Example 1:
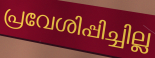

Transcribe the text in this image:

പ്രവേശിപ്പിച്ചില്ല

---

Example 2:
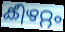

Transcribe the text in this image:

കീഴറ്റം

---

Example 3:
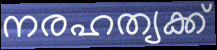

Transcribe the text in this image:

നരഹത്യക്ക്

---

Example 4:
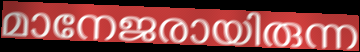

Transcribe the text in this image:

മാനേജരായിരുന്ന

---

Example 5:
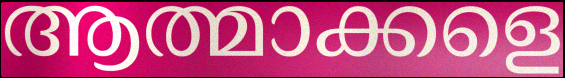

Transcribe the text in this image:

ആത്മാക്കളെ